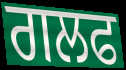
ਗਲਫ